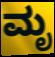
ಮೃ